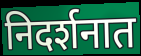
निदर्शनात